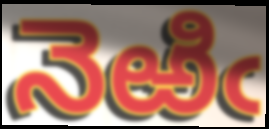
నెఱిఁ